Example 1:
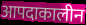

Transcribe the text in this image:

आपदाकालीन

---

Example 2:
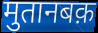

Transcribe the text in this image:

मुतानबक़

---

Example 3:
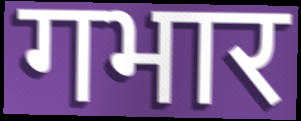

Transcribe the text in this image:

गभार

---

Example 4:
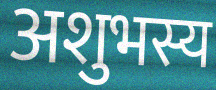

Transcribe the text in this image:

अशुभस्य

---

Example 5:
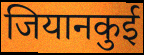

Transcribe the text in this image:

जियानकुई